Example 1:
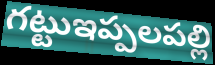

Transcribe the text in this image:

గట్టుఇప్పలపల్లి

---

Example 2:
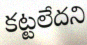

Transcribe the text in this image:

కట్టలేదని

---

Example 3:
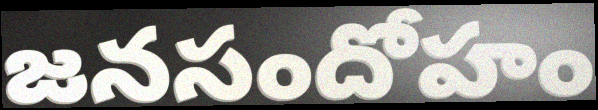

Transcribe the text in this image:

జనసందోహం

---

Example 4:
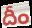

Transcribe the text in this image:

దీం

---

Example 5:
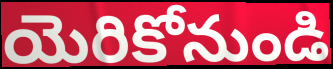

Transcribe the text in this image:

యెరికోనుండి